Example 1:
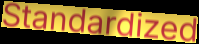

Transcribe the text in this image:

Standardized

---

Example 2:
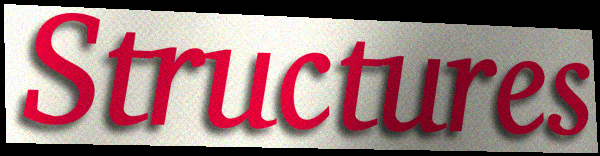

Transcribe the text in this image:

Structures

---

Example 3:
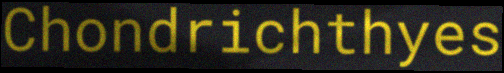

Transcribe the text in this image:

Chondrichthyes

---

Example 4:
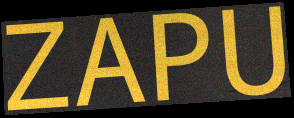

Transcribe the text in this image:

ZAPU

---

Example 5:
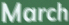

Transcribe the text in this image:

March